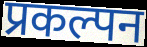
प्रकल्पन